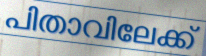
പിതാവിലേക്ക്